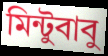
মিন্টুবাবু